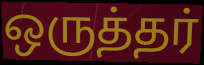
ஒருத்தர்